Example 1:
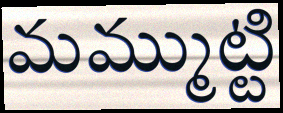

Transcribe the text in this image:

మమ్ముట్టి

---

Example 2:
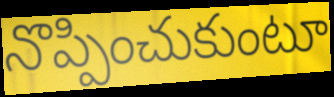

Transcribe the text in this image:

నొప్పించుకుంటూ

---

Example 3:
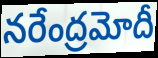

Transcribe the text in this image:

నరేంద్రమోదీ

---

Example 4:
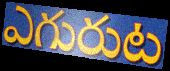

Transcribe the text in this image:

ఎగురుట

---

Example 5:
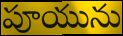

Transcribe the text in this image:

పూయును